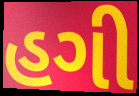
હગી